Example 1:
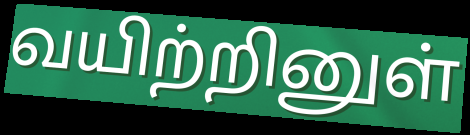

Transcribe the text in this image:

வயிற்றினுள்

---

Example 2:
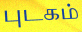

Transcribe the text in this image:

புடகம்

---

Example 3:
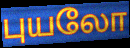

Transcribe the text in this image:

புயலோ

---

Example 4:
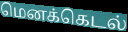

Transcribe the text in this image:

மெனக்கெடல்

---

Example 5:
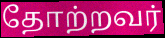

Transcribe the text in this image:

தோற்றவர்